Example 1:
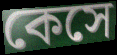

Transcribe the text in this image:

কেসে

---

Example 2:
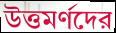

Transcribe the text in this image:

উত্তমর্ণদের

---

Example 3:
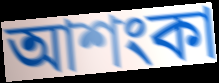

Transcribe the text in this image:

আশংকা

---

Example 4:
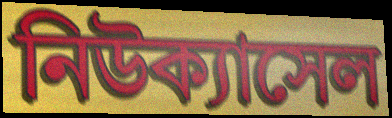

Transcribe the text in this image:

নিউক্যাসেল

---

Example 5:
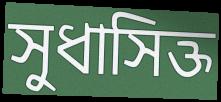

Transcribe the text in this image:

সুধাসিক্ত